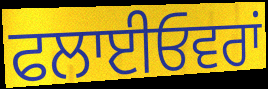
ਫਲਾਈਓਵਰਾਂ